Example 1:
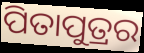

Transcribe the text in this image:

ପିତାପୁତ୍ରର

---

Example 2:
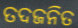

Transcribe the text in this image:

ତଦଜନିତ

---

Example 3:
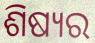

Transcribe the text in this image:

ଶିଷ୍ୟର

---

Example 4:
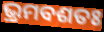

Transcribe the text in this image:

ଭ୍ରମବଶତଃ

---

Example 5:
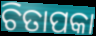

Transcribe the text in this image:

ଚିତାପକା